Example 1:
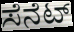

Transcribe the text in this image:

ಸೆನೆಟ್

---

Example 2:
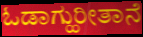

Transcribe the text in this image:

ಓಡಾಗ್ಹುರೀತಾನೆ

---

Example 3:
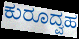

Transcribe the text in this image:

ಕುರೂದ್ವಹ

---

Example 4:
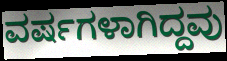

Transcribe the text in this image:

ವರ್ಷಗಳಾಗಿದ್ದವು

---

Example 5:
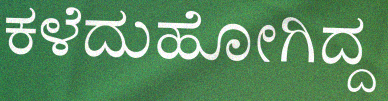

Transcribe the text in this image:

ಕಳೆದುಹೋಗಿದ್ದ